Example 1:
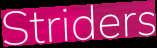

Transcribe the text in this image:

Striders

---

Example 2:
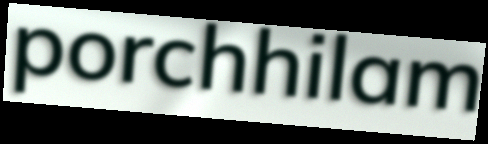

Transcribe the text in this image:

porchhilam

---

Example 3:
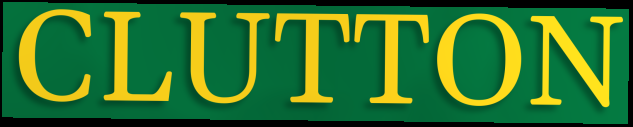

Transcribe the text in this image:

CLUTTON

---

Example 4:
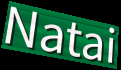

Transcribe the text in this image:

Natai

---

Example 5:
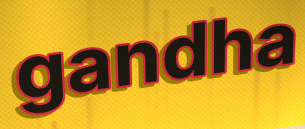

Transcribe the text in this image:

gandha